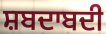
ਸ਼ਬਦਾਬਦੀ